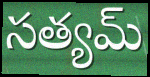
సత్యమ్